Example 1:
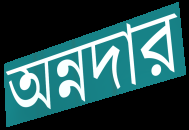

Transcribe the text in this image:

অন্নদার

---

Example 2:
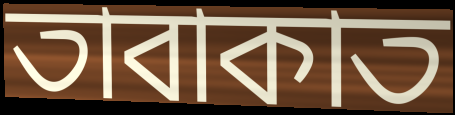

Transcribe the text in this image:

তাবাকাত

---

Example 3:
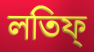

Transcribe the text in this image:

লতিফ্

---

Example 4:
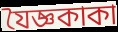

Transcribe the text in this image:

যৈজ্ঞকাকা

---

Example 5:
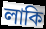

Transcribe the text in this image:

লাকি